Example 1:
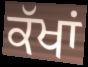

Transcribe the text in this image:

ਕੱਖਾਂ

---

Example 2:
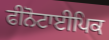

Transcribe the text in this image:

ਫੀਨੋਟਾਈਪਿਕ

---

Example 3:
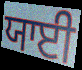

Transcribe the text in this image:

ਯਾਈ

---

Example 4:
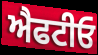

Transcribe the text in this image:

ਐਫਟੀਓ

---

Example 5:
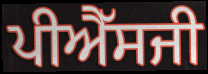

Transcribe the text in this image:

ਪੀਐੱਸਜੀ